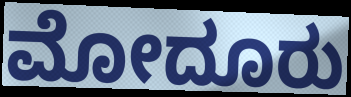
ಮೋದೂರು